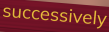
successively